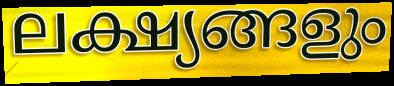
ലക്ഷ്യങ്ങളും